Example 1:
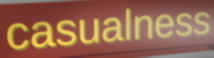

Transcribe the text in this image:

casualness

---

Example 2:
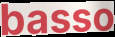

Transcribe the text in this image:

basso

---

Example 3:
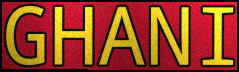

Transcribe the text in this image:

GHANI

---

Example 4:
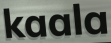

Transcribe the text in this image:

kaala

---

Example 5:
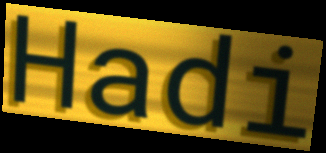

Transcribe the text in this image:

Hadi